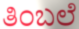
ತಿಂಬಲೆ